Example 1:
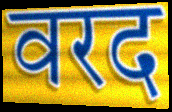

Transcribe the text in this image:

वरद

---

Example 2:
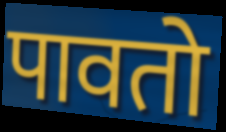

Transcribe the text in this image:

पावतो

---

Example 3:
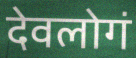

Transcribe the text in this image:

देवलोगं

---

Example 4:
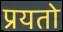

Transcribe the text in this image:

प्रयतो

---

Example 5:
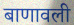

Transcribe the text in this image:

बाणावली